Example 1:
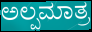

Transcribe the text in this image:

ಅಲ್ಪಮಾತ್ರ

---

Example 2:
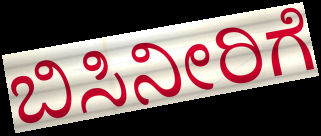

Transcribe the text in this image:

ಬಿಸಿನೀರಿಗೆ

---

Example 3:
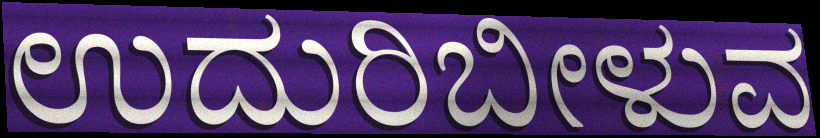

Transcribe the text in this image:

ಉದುರಿಬೀಳುವ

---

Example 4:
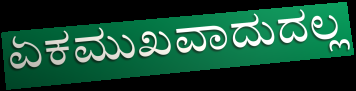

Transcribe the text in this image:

ಏಕಮುಖವಾದುದಲ್ಲ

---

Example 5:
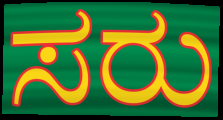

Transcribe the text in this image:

ಸರು